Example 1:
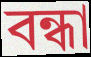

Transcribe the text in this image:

বন্ধা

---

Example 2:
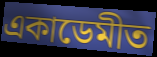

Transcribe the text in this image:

একাডেমীত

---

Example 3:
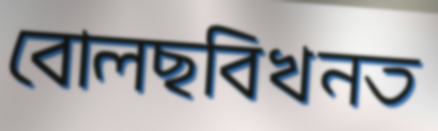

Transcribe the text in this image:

বোলছবিখনত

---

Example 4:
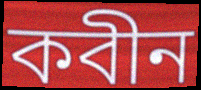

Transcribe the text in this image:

কবীন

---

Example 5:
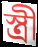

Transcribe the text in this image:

স্ত্ৰী